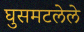
घुसमटलेले